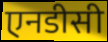
एनडीसी